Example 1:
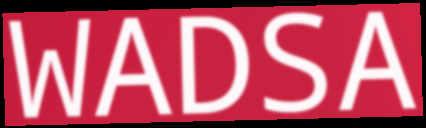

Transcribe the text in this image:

WADSA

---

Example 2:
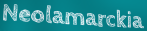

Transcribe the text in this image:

Neolamarckia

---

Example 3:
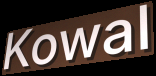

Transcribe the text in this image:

Kowal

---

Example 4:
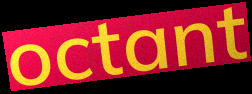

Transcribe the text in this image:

octant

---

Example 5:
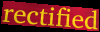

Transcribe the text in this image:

rectified